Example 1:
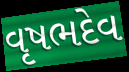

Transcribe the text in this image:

વૃષભદેવ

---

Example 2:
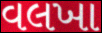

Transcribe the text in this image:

વલખા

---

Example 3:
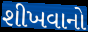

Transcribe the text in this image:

શીખવાનો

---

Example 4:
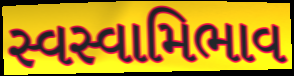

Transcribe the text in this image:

સ્વસ્વામિભાવ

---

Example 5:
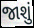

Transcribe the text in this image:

જાશું